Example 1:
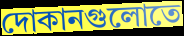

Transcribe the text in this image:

দোকানগুলোতে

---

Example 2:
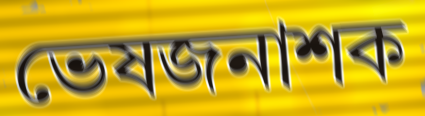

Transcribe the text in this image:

ভেষজনাশক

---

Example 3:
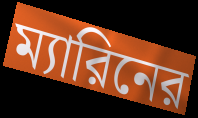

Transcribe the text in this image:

ম্যারিনের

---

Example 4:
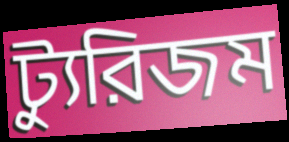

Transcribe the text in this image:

ট্যুরিজম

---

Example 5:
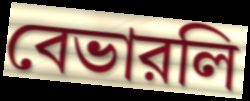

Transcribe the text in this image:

বেভারলি